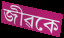
জীৱকে